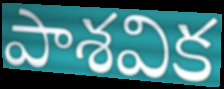
పాశవిక